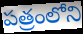
పత్రంలోని